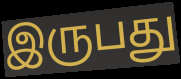
இருபது